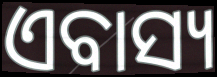
ଏବାସ୍ୟ